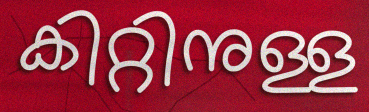
കിറ്റിനുള്ള